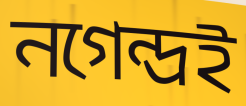
নগেন্দ্রই